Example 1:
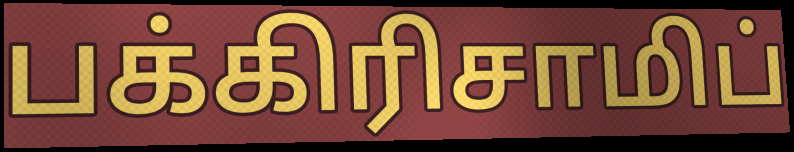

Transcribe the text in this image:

பக்கிரிசாமிப்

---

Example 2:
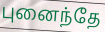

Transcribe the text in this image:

புனைந்தே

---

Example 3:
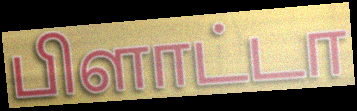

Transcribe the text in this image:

பிளாட்டா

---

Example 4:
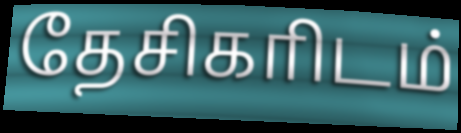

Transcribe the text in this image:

தேசிகரிடம்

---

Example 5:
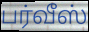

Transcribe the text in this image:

பர்வீஸ்